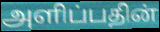
அளிப்பதின்